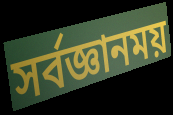
সর্বজ্ঞানময়